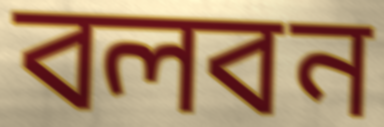
বলবন